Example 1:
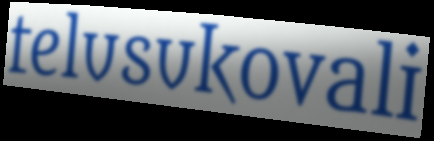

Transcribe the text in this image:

telusukovali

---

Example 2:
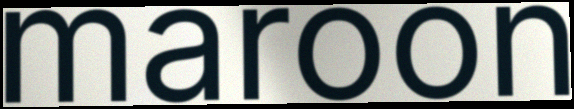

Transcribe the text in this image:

maroon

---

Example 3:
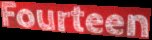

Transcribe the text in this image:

Fourteen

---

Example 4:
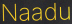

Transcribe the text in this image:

Naadu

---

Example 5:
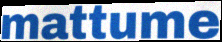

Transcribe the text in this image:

mattume